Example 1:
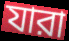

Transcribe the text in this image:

যারা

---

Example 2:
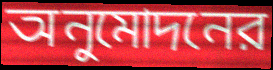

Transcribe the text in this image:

অনুমোদনের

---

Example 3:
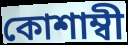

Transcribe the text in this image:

কোশাম্বী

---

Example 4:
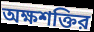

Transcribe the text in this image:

অক্ষশক্তির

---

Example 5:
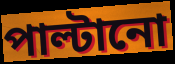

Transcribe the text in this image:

পাল্টানো